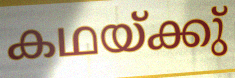
കഥയ്ക്കു്